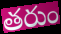
తరుం